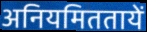
अनियमिततायें